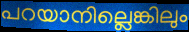
പറയാനില്ലെങ്കിലും